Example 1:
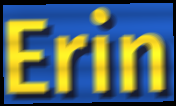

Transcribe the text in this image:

Erin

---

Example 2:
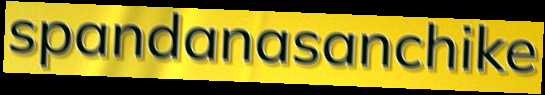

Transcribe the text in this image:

spandanasanchike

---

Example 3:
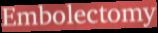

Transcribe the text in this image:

Embolectomy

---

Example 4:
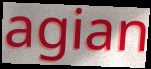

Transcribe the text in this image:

agian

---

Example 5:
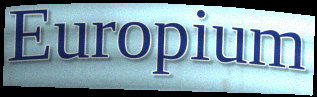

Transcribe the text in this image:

Europium